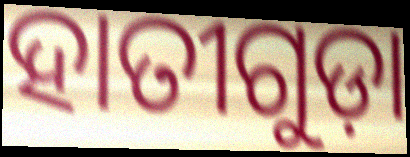
ହାତୀଗୁଡ଼ା